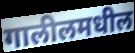
गालीलमधील